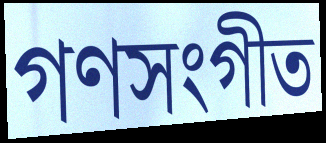
গণসংগীত